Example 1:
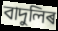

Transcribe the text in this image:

বাদুলিৰ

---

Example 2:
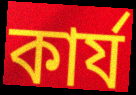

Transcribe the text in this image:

কাৰ্য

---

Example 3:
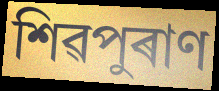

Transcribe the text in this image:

শিৱপুৰাণ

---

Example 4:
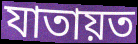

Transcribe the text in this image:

যাতায়ত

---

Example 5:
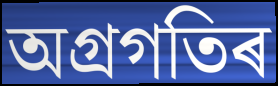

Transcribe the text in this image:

অগ্ৰগতিৰ